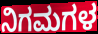
ನಿಗಮಗಳ